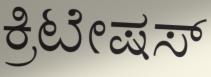
ಕ್ರಿಟೇಷಸ್